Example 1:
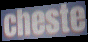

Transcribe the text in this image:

cheste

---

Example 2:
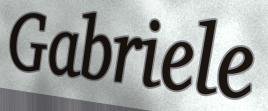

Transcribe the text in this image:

Gabriele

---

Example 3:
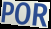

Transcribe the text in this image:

POR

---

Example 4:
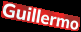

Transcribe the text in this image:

Guillermo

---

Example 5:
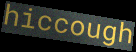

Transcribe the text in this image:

hiccough